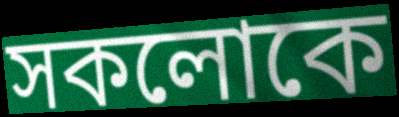
সকলোকে